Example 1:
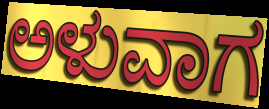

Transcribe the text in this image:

ಅಳುವಾಗ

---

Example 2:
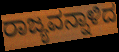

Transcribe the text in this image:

ರಾಜ್ಯವನ್ನಾಳಿದ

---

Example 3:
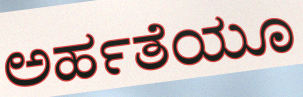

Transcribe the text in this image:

ಅರ್ಹತೆಯೂ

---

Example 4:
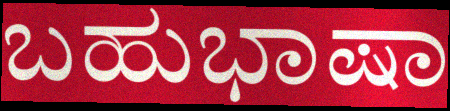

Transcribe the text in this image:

ಬಹುಭಾಷಾ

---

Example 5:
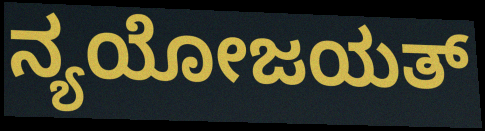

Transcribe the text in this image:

ನ್ಯಯೋಜಯತ್